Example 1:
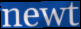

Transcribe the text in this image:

newt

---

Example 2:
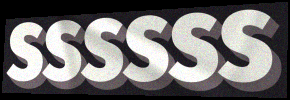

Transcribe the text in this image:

ssssss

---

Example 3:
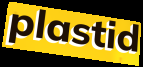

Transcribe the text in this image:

plastid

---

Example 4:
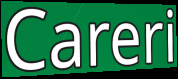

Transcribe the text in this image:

Careri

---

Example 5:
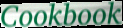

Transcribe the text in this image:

Cookbook